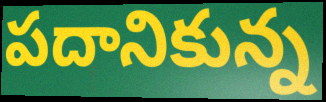
పదానికున్న